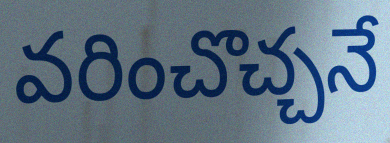
వరించొచ్చనే